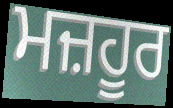
ਮਜ਼ਹੂਰ